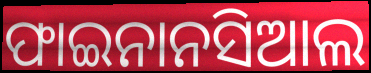
ଫାଇନାନସିଆଲ